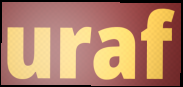
uraf